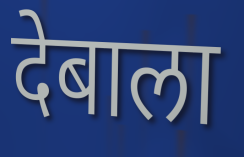
देबाला